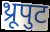
थ्रूपुट